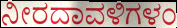
ನೀರದಾವಳಿಗಳಂ